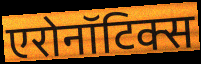
एरोनॉटिक्स